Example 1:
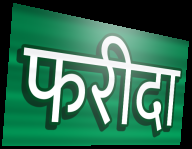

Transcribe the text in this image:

फरीदा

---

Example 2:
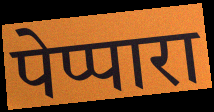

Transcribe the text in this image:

पेप्पारा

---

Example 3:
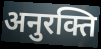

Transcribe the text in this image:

अनुरक्ति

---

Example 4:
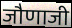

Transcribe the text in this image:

जौणाजी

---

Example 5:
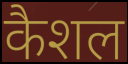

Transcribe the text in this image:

कैशल